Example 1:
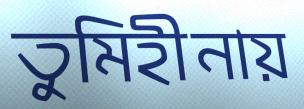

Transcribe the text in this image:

তুমিহীনায়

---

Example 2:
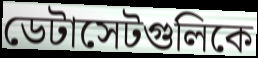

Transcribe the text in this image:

ডেটাসেটগুলিকে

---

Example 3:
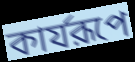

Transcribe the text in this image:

কার্যরূপে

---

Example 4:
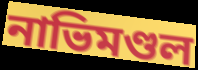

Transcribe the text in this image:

নাভিমণ্ডল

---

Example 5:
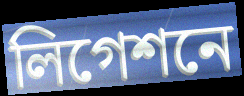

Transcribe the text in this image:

লিগেশনে